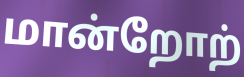
மான்றோற்